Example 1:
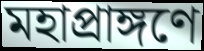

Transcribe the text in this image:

মহাপ্রাঙ্গণে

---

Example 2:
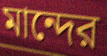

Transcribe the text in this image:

মান্দের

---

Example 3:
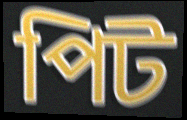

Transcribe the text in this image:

পিট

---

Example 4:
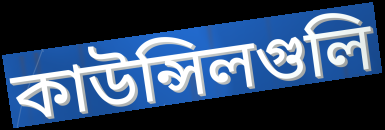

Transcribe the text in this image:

কাউন্সিলগুলি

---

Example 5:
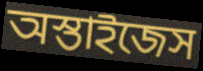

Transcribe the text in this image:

অস্তাইজেস